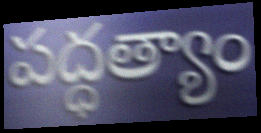
పద్ధత్యాం